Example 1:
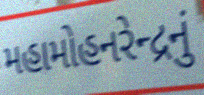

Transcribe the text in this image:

મહામોહનરેન્દ્રનું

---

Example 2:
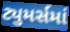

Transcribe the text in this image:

ટ્યુમર્સમાં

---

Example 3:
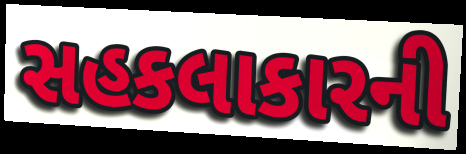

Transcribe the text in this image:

સહકલાકારની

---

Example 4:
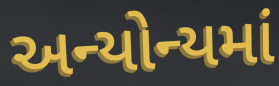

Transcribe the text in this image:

અન્યોન્યમાં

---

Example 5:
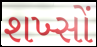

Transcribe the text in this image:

શખ્સોં